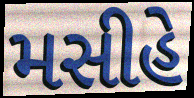
મસીહે